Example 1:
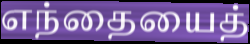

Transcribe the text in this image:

எந்தையைத்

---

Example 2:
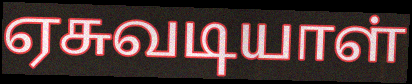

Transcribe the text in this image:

ஏசுவடியாள்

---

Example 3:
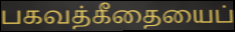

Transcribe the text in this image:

பகவத்கீதையைப்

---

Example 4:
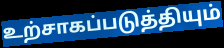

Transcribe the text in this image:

உற்சாகப்படுத்தியும்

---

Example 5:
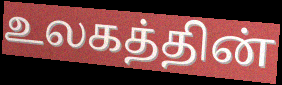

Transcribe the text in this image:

உலகத்தின்